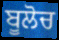
ਬੂਲੋਚ